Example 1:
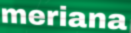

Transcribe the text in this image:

meriana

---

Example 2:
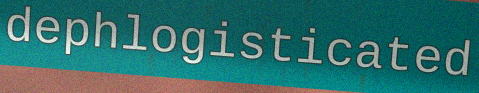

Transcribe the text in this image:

dephlogisticated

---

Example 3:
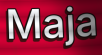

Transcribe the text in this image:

Maja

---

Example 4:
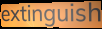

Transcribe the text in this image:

extinguish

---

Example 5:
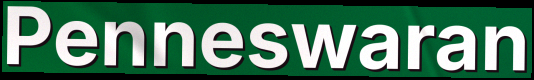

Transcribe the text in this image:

Penneswaran